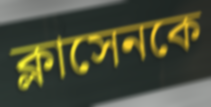
ক্লাসেনকে